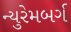
ન્યુરેમબર્ગ